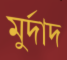
মুৰ্দাদ